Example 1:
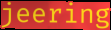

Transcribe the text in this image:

jeering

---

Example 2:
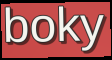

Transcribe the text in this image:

boky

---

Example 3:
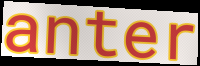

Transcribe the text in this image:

anter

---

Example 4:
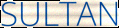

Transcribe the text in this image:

SULTAN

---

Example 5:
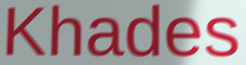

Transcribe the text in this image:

Khades